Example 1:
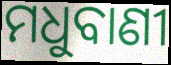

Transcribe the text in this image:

ମଧୁବାଣୀ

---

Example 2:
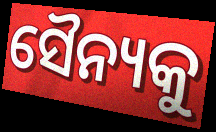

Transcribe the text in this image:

ସୈନ୍ୟକୁ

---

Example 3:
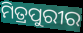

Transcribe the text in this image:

ମିତ୍ରପୁରୀର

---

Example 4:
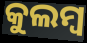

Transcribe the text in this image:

କୁଲମ୍ବ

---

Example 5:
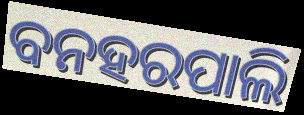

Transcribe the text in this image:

ବନହରପାଲି